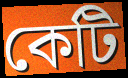
কেটি